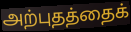
அற்புதத்தைக்